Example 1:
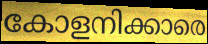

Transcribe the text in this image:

കോളനിക്കാരെ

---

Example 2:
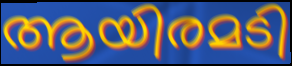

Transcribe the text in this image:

ആയിരമടി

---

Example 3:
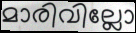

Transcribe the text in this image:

മാരിവില്ലോ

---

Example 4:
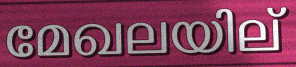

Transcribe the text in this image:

മേഖലയില്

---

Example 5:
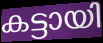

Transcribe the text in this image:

കട്ടായി